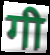
गी